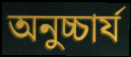
অনুচ্চার্য